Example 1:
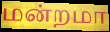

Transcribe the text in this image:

மன்றமா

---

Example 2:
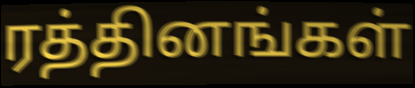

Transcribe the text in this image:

ரத்தினங்கள்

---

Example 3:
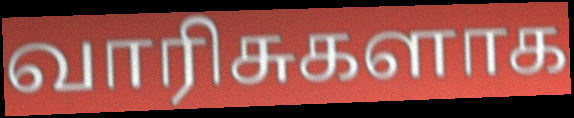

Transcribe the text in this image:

வாரிசுகளாக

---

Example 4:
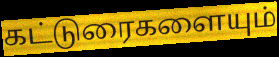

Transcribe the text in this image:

கட்டுரைகளையும்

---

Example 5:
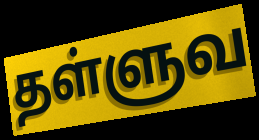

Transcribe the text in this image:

தள்ளுவ